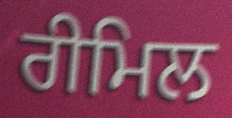
ਰੀਮਿਲ